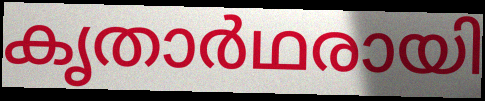
കൃതാർഥരായി